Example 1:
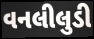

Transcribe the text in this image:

વનલીલુડી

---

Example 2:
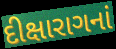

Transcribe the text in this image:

દીક્ષારાગનાં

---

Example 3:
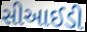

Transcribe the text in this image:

સીઆઈડી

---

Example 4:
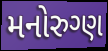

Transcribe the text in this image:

મનોરુગ્ણ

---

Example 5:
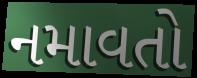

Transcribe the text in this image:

નમાવતો